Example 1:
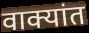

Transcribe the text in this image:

वाक्यांत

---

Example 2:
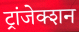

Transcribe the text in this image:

ट्रांजेक्शन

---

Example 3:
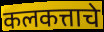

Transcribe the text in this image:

कलकत्ताचे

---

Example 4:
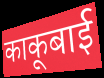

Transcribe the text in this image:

काकूबाई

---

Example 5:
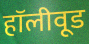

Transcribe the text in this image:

हॉलीवूड